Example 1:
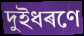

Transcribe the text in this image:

দুইধৰণে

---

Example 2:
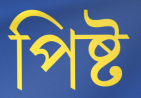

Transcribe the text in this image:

পিষ্ট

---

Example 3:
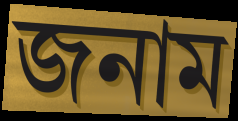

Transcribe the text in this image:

জনাম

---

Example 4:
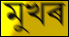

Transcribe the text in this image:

মুখৰ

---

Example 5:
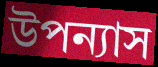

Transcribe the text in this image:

উপন্যাস